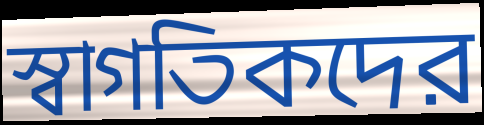
স্বাগতিকদের